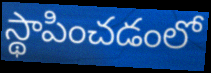
స్థాపించడంలో